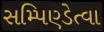
સમ્પિણ્ડેત્વા